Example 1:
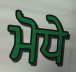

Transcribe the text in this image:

ਮੋਧੇ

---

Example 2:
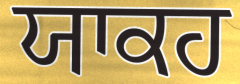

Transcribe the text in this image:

ਯਾਕਹ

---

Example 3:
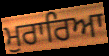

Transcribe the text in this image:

ਮੁਰਾਰਿਆ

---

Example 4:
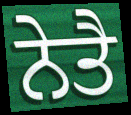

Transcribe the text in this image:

ਨੇਤੈ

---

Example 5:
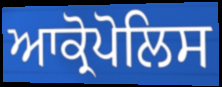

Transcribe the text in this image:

ਆਕ੍ਰੋਪੋਲਿਸ